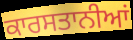
ਕਾਰਸਤਾਨੀਆਂ